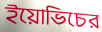
ইয়োভিচের